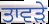
ਤਾਵੜੇ